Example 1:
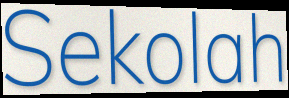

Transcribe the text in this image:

Sekolah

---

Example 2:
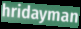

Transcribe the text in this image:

hridayman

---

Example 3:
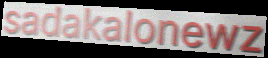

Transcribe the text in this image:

sadakalonewz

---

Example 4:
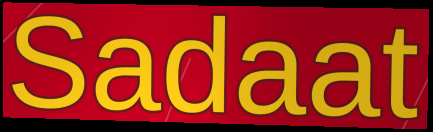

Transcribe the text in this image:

Sadaat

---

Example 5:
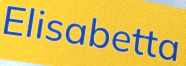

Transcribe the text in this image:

Elisabetta